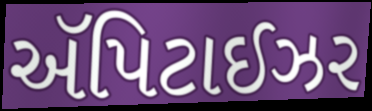
ઍપિટાઈઝર